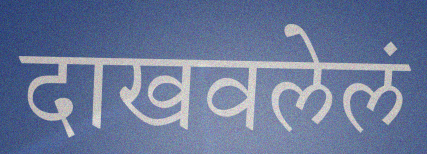
दाखवलेलं